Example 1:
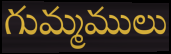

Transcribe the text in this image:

గుమ్మములు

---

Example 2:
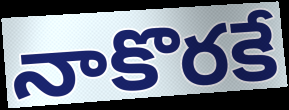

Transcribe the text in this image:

నాకొరకే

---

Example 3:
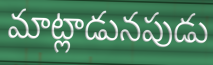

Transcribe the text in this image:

మాట్లాడునపుడు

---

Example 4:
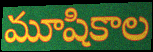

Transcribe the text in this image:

మూషికాల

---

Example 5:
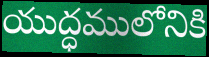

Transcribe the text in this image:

యుద్ధములోనికి